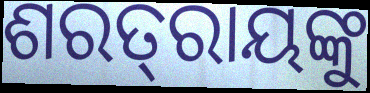
ଶରତ୍‌ରାୟଙ୍କୁ